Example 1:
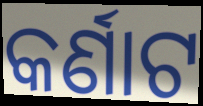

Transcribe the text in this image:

କର୍ଣାଟ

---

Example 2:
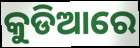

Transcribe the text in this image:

କୁଡିଆରେ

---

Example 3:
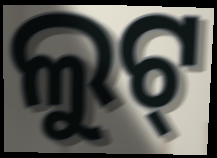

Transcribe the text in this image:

ଲୁଟ୍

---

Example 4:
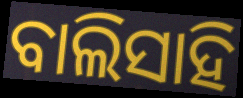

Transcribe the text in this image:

ବାଲିସାହି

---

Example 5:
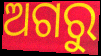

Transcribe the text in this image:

ଅଗରୁ